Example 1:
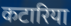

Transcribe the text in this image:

कटारिया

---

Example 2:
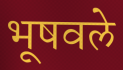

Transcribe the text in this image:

भूषवले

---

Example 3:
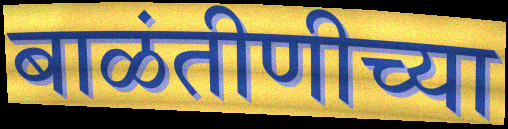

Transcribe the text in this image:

बाळंतीणीच्या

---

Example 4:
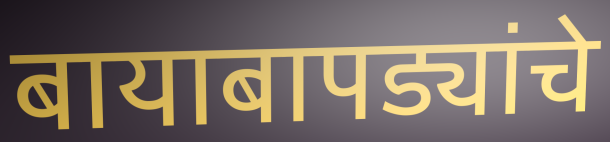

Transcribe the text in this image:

बायाबापड्यांचे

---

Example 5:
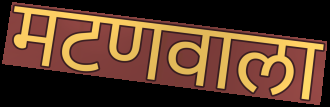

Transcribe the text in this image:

मटणवाला